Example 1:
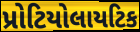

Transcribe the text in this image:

પ્રોટિયોલાયટિક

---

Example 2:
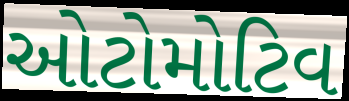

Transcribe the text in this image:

ઓટોમોટિવ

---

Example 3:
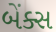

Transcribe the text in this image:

બેંક્સ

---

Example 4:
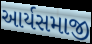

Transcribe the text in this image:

આર્યસમાજી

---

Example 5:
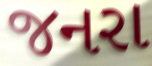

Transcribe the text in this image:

જનરા